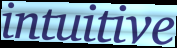
intuitive